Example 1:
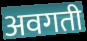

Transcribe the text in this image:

अवगती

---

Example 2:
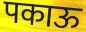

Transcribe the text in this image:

पकाऊ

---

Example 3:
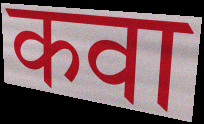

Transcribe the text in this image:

कवा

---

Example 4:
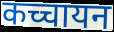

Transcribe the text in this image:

कच्चायन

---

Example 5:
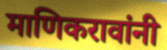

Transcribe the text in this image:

माणिकरावांनी